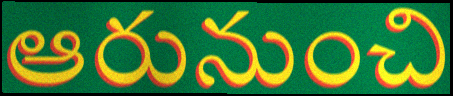
ఆరునుంచి